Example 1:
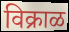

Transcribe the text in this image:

विक्राळ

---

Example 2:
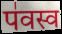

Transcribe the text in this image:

प॑वस्व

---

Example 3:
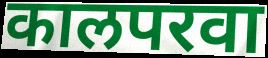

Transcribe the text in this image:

कालपरवा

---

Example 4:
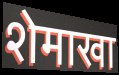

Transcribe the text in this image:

शेमाखा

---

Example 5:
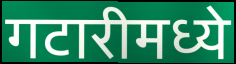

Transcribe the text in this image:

गटारीमध्ये